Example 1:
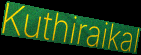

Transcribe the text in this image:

Kuthiraikal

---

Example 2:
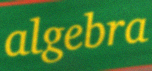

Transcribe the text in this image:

algebra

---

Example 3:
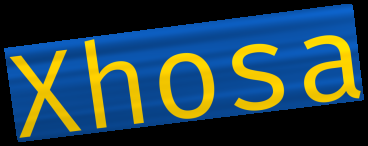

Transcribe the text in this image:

Xhosa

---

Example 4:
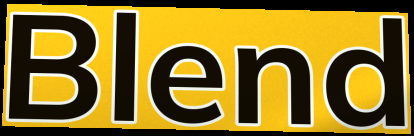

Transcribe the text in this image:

Blend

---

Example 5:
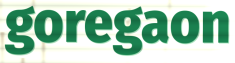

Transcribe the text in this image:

goregaon